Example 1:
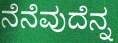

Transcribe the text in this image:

ನೆನೆವುದೆನ್ನ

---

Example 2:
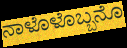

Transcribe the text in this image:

ನಾಳೊಳೊಬ್ಬನೊ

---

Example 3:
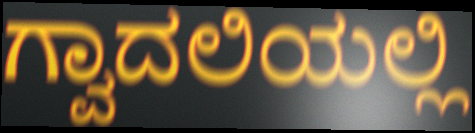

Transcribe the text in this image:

ಗ್ವಾದಲಿಯಲ್ಲಿ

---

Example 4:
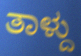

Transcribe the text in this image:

ತಾಳ್ದು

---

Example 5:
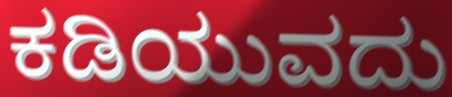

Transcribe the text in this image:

ಕಡಿಯುವದು